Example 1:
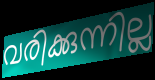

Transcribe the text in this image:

വരിക്കുന്നില്ല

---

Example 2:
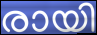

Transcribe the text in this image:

രായി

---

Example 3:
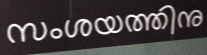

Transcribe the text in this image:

സംശയത്തിനു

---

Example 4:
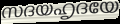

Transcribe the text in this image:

സദയഹൃദയേ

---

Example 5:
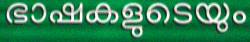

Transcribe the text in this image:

ഭാഷകളുടെയും